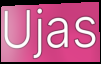
Ujas